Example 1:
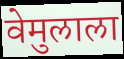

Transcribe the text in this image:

वेमुलाला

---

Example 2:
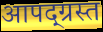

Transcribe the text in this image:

आपद्ग्रस्त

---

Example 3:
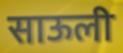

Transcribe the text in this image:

साऊली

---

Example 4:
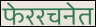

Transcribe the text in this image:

फेररचनेत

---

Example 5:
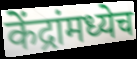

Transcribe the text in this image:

केंद्रांमध्येच